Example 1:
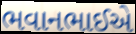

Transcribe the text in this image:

ભવાનભાઈએ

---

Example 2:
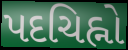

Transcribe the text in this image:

પદચિહ્નો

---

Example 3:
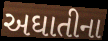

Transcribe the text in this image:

અઘાતીના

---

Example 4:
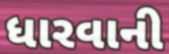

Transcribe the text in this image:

ધારવાની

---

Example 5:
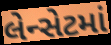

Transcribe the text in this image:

લેન્સેટમાં